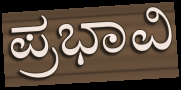
ಪ್ರಭಾವಿ